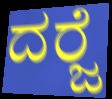
ದರ‍್ಜೆ